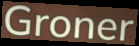
Groner